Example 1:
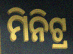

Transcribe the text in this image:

ମିନିଟ୍ର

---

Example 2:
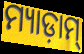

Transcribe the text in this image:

ମ୍ୟାଡ଼ାମ୍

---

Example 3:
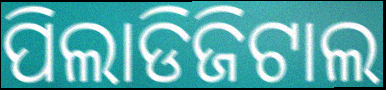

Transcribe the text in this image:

ପିଲାଡିଜିଟାଲ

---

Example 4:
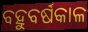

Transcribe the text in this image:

ବହୁବର୍ଷକାଳ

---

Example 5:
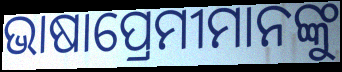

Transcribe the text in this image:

ଭାଷାପ୍ରେମୀମାନଙ୍କୁ